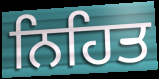
ਨਿਹਿਤ